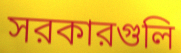
সরকারগুলি